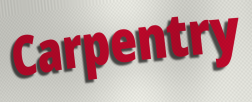
Carpentry